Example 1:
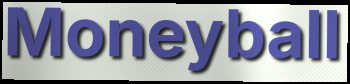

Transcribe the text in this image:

Moneyball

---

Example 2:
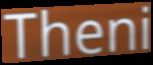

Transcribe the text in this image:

Theni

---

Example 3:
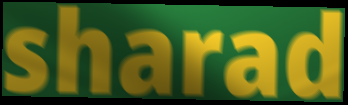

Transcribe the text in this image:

sharad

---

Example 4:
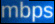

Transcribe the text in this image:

mbps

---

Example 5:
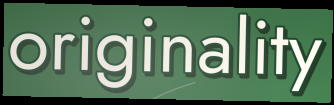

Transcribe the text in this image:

originality